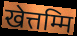
खेत्तम्मि